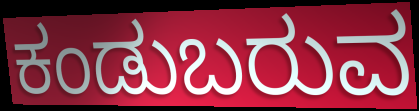
ಕಂಡುಬರುವ